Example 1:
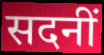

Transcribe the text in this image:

सदनीं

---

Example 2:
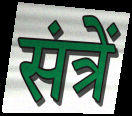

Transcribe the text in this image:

संत्रें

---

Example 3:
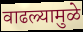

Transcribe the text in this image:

वाढल्यामुळे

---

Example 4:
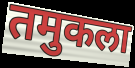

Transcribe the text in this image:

तमुकला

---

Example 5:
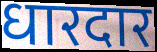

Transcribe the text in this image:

धारदार